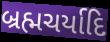
બ્રહ્મચર્યાદિ